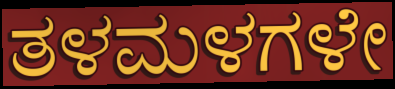
ತಳಮಳಗಳೇ